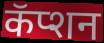
कॅप्शन